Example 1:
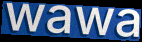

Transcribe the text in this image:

wawa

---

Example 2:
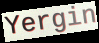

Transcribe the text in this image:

Yergin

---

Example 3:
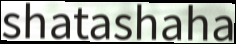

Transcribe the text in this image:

shatashaha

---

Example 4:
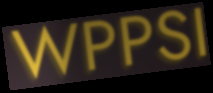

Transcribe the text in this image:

WPPSI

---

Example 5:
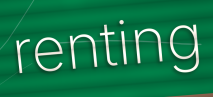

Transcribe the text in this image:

renting